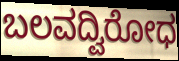
ಬಲವದ್ವಿರೋಧ